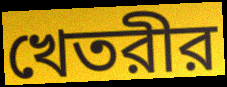
খেতরীর